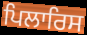
ਪਿਲਾਰਿਸ